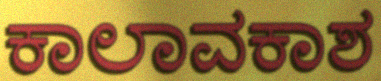
ಕಾಲಾವಕಾಶ